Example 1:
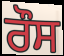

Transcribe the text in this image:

ਰੌਸ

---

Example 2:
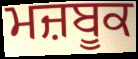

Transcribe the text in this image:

ਮਜ਼ਬੂਕ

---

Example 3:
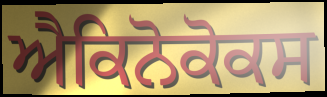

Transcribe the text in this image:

ਐਕਿਨੋਕੋਕਸ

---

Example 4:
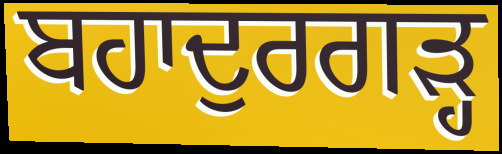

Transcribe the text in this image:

ਬਹਾਦੁਰਗੜ੍ਹ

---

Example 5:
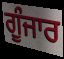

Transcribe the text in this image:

ਗੂੰਜਾਰ